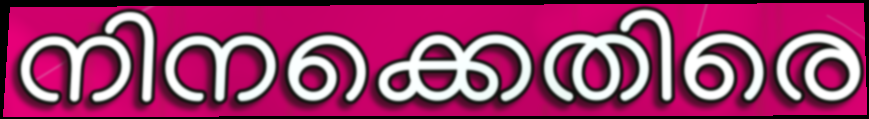
നിനക്കെതിരെ